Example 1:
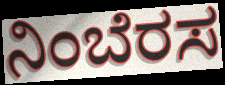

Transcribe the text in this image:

ನಿಂಬೆರಸ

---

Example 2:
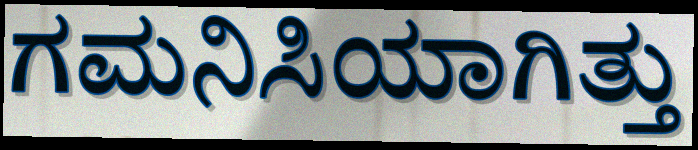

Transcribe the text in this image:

ಗಮನಿಸಿಯಾಗಿತ್ತು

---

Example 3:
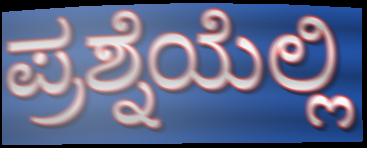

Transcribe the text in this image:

ಪ್ರಶ್ನೆಯೆಲ್ಲಿ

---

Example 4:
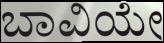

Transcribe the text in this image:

ಬಾವಿಯೇ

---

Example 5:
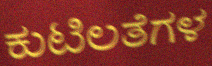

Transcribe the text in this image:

ಕುಟಿಲತೆಗಳ